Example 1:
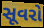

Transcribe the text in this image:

સૂવરો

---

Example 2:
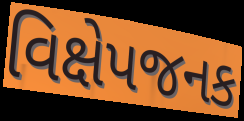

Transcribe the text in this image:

વિક્ષેપજનક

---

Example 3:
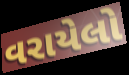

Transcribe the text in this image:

વરાયેલો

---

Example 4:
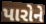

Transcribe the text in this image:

પારોને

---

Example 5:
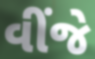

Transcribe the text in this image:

વીંજે